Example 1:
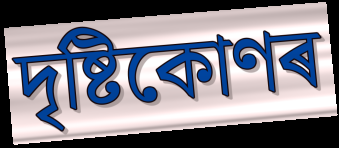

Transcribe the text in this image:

দৃষ্টিকোণৰ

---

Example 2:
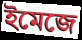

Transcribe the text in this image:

ইমেজে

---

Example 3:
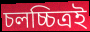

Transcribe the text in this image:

চলচ্চিত্ৰই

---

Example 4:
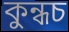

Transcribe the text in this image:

কুন্ধচ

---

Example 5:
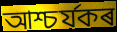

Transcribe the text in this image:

আশ্চৰ্যকৰ